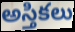
అస్తికలు